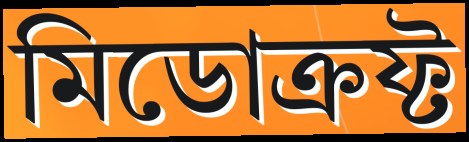
মিডোক্রফ্ট